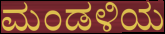
ಮಂಡಳಿಯ